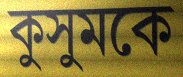
কুসুমকে